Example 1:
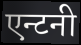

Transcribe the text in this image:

एन्टनी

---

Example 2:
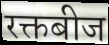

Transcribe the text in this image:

रक्तबीज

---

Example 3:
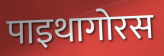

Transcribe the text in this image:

पाइथागोरस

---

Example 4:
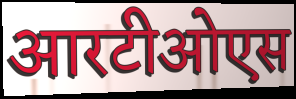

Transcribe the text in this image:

आरटीओएस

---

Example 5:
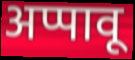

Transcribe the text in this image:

अप्पावू